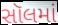
સૉલમાં